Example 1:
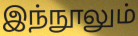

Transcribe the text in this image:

இந்நூலும்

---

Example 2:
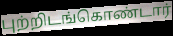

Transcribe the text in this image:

புற்றிடங்கொண்டார்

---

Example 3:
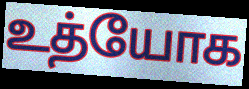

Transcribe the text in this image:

உத்யோக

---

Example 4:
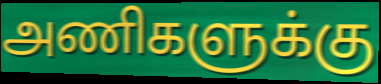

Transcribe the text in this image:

அணிகளுக்கு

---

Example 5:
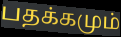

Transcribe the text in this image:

பதக்கமும்